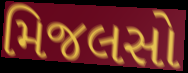
મિજલસો